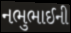
નભુભાઈની